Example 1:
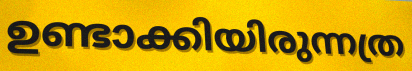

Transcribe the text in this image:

ഉണ്ടാക്കിയിരുന്നത്ര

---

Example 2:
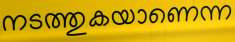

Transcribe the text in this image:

നടത്തുകയാണെന്ന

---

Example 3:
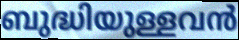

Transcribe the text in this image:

ബുദ്ധിയുള്ളവൻ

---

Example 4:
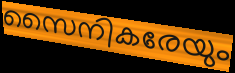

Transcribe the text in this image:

സൈനികരേയും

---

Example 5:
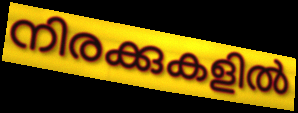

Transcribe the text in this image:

നിരക്കുകളിൽ